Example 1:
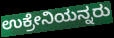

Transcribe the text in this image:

ಉಕ್ರೇನಿಯನ್ನರು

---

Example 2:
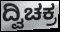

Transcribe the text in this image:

ದ್ವಿಚಕ್ರ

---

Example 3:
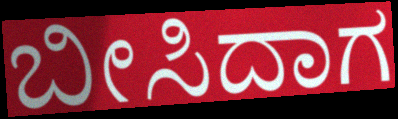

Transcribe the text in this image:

ಬೀಸಿದಾಗ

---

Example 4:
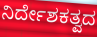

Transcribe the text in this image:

ನಿರ್ದೇಶಕತ್ವದ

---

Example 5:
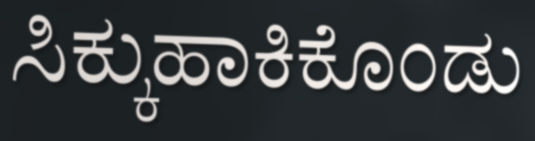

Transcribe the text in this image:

ಸಿಕ್ಕುಹಾಕಿಕೊಂಡು